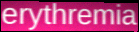
erythremia